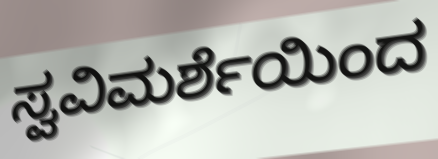
ಸ್ವವಿಮರ್ಶೆಯಿಂದ